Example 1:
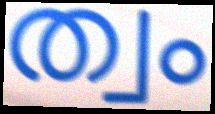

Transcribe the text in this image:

ത്വം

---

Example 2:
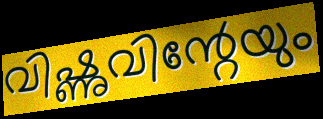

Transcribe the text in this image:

വിഷ്ണുവിന്റേയും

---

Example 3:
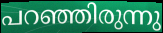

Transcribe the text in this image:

പറഞ്ഞിരുന്നു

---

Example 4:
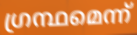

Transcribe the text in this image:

ഗ്രന്ഥമെന്ന്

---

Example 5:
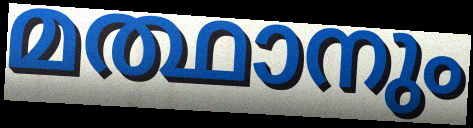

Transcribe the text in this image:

മത്ഥാനും